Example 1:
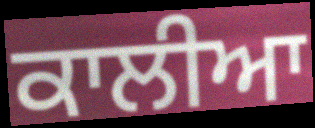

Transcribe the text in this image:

ਕਾਲੀਆ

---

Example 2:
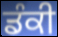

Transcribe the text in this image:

ਡੰਕੀ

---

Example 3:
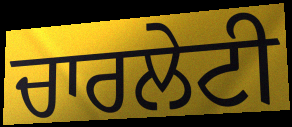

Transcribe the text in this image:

ਚਾਰਲੇਟੀ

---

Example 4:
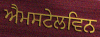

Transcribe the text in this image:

ਐਮਸਟੇਲਵਿਨ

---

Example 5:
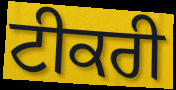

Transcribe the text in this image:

ਟੀਕਰੀ